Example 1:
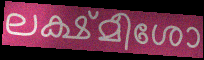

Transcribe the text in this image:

ലക്ഷ്മീശോ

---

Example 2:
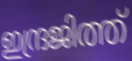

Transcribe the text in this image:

ഇന്ദ്രജിത്ത്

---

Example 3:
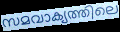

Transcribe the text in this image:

സമവാക്യത്തിലെ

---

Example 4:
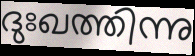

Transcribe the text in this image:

ദുഃഖത്തിന്നു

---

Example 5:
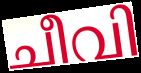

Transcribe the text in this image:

ചീവി